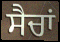
ਸੈਚਾਂ